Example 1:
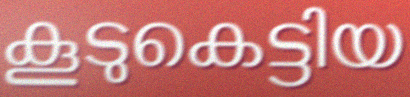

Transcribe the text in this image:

കൂടുകെട്ടിയ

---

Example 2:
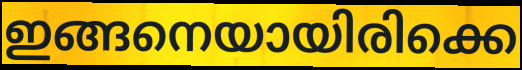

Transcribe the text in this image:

ഇങ്ങനെയായിരിക്കെ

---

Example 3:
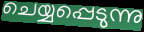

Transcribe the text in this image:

ചെയ്യപ്പെടുന്നു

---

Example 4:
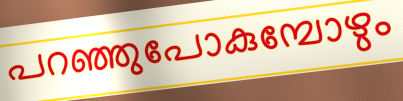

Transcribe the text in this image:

പറഞ്ഞുപോകുമ്പോഴും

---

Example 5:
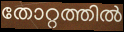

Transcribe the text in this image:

തോറ്റത്തിൽ